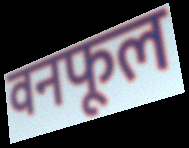
वनफूल